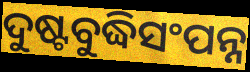
ଦୁଷ୍ଟବୁଦ୍ଧିସଂପନ୍ନ